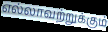
எல்லாவற்றுக்கும்